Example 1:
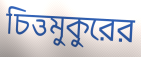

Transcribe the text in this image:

চিত্তমুকুরের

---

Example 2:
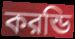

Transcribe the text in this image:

করন্ডি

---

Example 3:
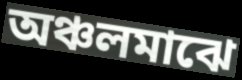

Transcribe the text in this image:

অঞ্চলমাঝে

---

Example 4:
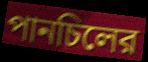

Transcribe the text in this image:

পানচিলের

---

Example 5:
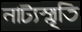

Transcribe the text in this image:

নাট্যস্মৃতি